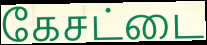
கேசட்டை